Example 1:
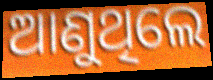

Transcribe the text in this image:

ଆଣୁଥିଲେ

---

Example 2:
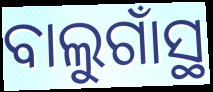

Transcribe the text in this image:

ବାଲୁଗାଁସ୍ଥ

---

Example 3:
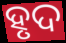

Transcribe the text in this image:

ହୃଦ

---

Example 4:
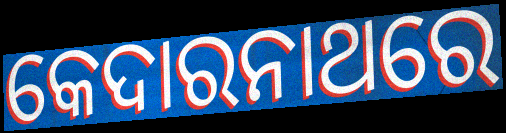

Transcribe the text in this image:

କେଦାରନାଥରେ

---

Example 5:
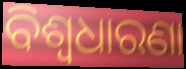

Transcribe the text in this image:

ବିଶ୍ୱଧାରଣା